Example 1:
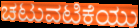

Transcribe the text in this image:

ಚಟುವಟಿಕೆಯು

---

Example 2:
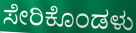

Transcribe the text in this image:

ಸೇರಿಕೊಂಡಳು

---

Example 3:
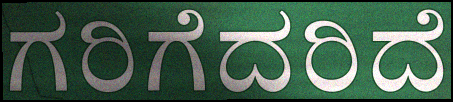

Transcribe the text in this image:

ಗರಿಗೆದರಿದೆ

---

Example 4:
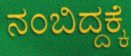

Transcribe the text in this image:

ನಂಬಿದ್ದಕ್ಕೆ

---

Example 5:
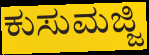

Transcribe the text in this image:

ಕುಸುಮಜ್ಜಿ